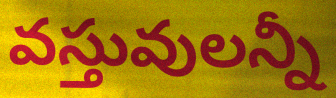
వస్తువులన్నీ